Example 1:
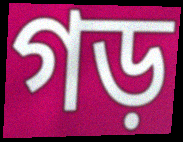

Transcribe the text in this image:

গড়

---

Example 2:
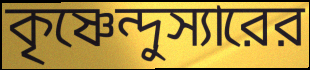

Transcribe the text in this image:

কৃষ্ণেন্দুস্যারের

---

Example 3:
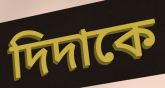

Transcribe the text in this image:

দিদাকে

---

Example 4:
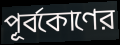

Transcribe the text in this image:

পূর্বকোণের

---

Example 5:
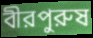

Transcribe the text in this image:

বীরপুরুষ